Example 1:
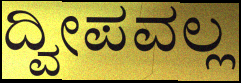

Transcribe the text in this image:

ದ್ವೀಪವಲ್ಲ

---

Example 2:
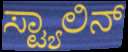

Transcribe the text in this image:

ಸ್ಟ್ಯಾಲಿನ್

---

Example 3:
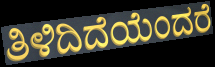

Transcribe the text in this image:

ತಿಳಿದಿದೆಯೆಂದರೆ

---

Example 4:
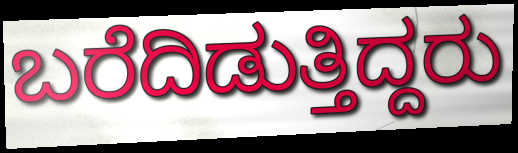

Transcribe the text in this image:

ಬರೆದಿಡುತ್ತಿದ್ದರು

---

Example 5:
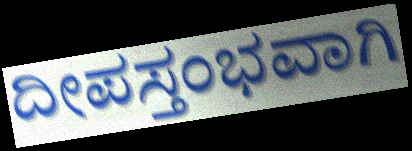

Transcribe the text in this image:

ದೀಪಸ್ತಂಭವಾಗಿ